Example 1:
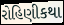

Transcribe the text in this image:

રોહિણીકથા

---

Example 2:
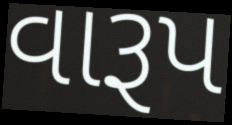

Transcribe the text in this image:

વારૂપ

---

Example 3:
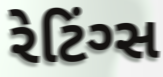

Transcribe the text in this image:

રેટિંગ્સ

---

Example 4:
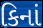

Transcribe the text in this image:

કિનાં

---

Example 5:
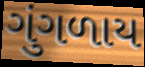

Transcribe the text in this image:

ગુંગળાય